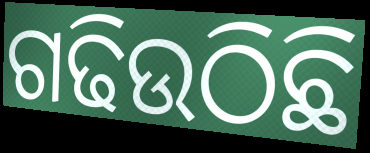
ଗଢିଉଠିଛି